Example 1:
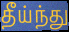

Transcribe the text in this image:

தீய்ந்து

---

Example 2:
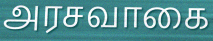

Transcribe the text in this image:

அரசவாகை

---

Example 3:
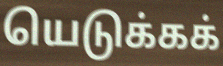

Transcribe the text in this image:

யெடுக்கக்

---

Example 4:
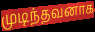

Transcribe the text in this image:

முடிந்தவனாக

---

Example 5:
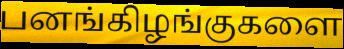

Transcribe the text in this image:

பனங்கிழங்குகளை